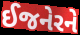
ઈજનેરને